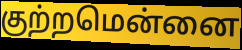
குற்றமென்னை